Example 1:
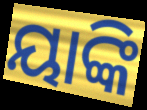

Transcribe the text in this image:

ୟାଙ୍କି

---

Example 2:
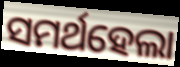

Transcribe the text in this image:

ସମର୍ଥହେଲା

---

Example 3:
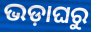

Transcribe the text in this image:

ଭଡ଼ାଘରୁ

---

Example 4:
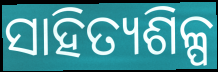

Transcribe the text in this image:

ସାହିତ୍ୟଶିଳ୍ପ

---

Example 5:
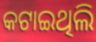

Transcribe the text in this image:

କଟାଇଥିଲି